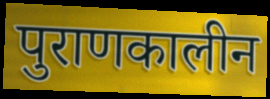
पुराणकालीन